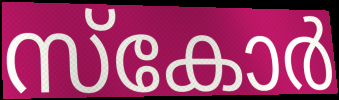
സ്കോർ